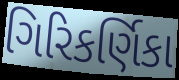
ગિરિકર્ણિકા